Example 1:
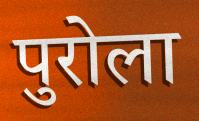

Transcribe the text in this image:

पुरोला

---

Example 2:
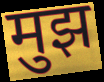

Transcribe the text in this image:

मुझ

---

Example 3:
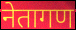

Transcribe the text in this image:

नेतागण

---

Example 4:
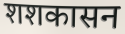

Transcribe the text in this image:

शशकासन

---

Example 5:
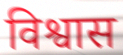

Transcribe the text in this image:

विश्वास